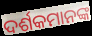
ଦର୍ଶକମାନଙ୍କ